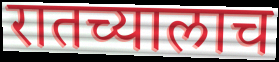
रातच्यालाच